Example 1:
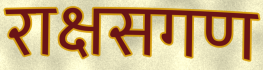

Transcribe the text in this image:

राक्षसगण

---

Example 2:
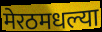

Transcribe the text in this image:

मेरठमधल्या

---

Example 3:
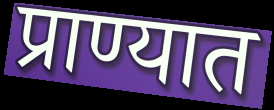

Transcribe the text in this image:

प्राण्यात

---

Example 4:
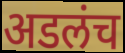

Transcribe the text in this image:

अडलंच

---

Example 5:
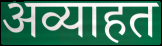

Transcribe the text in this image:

अव्याहत